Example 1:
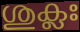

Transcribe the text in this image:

ശുക്ലഃ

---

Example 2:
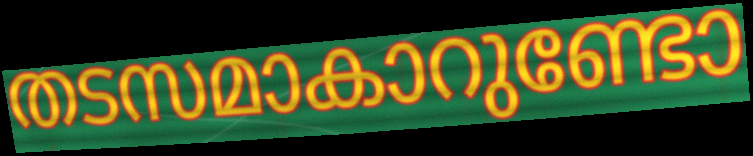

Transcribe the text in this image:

തടസമാകാറുണ്ടോ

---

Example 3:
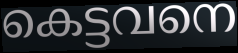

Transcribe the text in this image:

കെട്ടവനെ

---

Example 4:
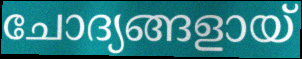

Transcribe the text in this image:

ചോദ്യങ്ങളായ്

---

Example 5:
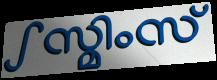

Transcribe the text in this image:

ഽസ്മിംസ്